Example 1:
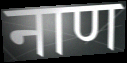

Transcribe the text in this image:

नाण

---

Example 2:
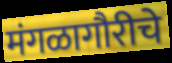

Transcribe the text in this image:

मंगळागौरीचे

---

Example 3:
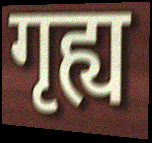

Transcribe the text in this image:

गृह्य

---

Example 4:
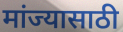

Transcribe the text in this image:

मांज्यासाठी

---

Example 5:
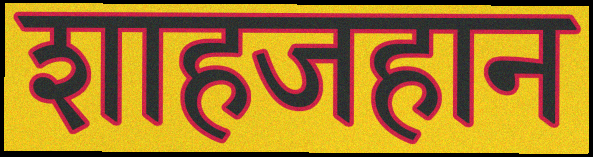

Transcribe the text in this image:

शाहजहान